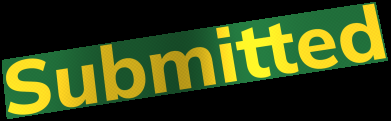
Submitted